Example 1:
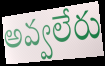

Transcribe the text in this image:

అవ్వలేరు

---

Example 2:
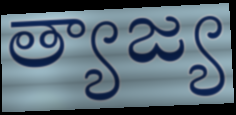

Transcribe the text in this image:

త్యాజ్య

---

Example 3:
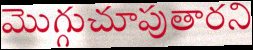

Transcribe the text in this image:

మొగ్గుచూపుతారని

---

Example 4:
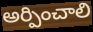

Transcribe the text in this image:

అర్పించాలి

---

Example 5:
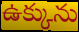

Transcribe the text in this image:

ఉక్కును